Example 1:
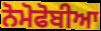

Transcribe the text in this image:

ਨੋਮੋਫੋਬੀਆ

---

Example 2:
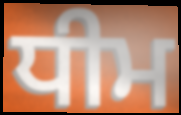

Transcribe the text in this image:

ਧੀਮ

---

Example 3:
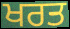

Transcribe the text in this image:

ਖਰਤ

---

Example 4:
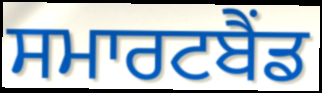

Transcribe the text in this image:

ਸਮਾਰਟਬੈਂਡ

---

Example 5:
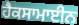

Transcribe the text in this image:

ਹੈਕਸਾਮਾਈਨ